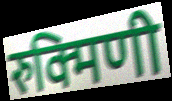
रुक्‍मिणी